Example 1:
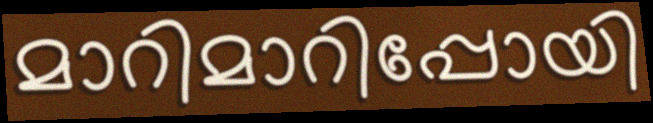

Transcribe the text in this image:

മാറിമാറിപ്പോയി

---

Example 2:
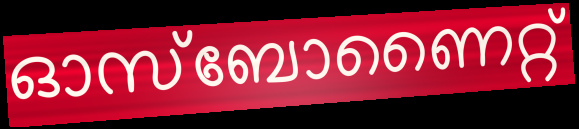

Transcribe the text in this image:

ഓസ്ബോണൈറ്റ്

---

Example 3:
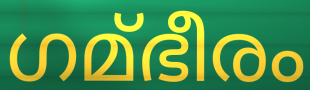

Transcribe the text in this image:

ഗമ്ഭീരം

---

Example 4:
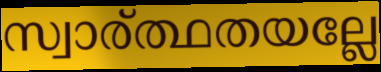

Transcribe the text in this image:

സ്വാര്ത്ഥതയല്ലേ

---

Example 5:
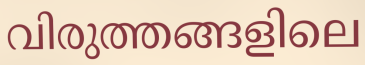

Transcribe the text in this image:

വിരുത്തങ്ങളിലെ